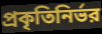
প্রকৃতিনির্ভর